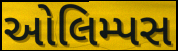
ઓલિમ્પસ